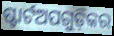
ଷ୍ଟାର୍ଟଅପଗୁଡ଼ିକର